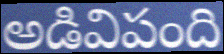
అడివిపంది